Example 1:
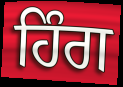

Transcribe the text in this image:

ਹਿੰਗ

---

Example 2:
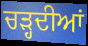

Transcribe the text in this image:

ਚੜ੍ਹਦੀਆਂ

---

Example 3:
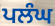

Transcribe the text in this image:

ਪਲੰਘ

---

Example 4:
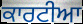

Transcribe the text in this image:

ਕਾਰਟੀਆ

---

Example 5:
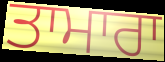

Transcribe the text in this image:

ਤਾਮਾਰਾ